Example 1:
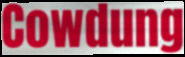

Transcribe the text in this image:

Cowdung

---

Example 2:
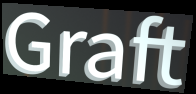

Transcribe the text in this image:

Graft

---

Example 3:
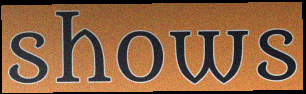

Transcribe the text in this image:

shows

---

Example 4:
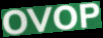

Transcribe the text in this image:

OVOP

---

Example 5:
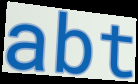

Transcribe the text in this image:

abt